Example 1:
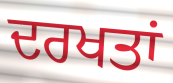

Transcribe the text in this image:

ਦਰਖਤਾਂ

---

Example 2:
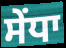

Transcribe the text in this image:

ਸੇਂਧਾ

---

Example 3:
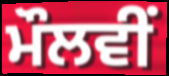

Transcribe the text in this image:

ਮੌਲਵੀਂ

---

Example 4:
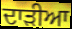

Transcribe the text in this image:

ਦਾੜੀਆ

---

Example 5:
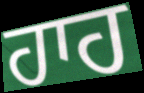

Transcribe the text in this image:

ਹਾਹ